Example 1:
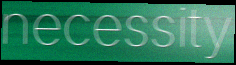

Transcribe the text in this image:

necessity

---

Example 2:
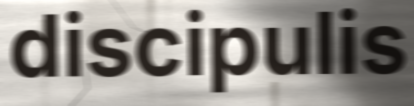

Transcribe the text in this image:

discipulis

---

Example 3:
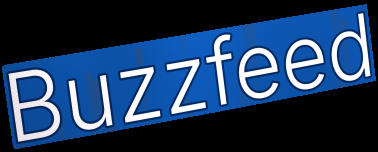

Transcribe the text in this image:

Buzzfeed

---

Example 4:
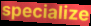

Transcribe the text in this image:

specialize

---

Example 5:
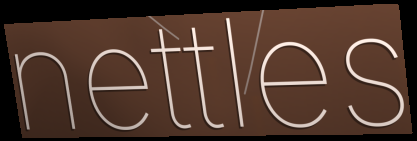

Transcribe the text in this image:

nettles